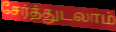
சேர்த்துடலாம்